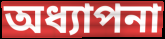
অধ্যাপনা